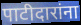
पाटीदारांना